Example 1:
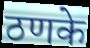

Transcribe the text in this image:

ठणके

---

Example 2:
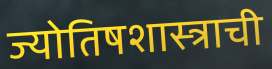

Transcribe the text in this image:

ज्योतिषशास्त्राची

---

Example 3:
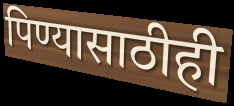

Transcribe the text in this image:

पिण्यासाठीही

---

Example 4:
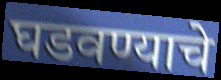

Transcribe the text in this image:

घडवण्याचे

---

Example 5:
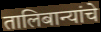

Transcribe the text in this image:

तालिबान्यांचे